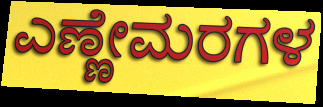
ಎಣ್ಣೇಮರಗಳ